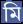
মি